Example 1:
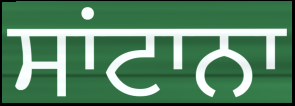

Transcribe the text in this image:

ਸਾਂਟਾਨਾ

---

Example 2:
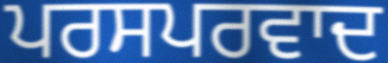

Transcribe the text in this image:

ਪਰਸਪਰਵਾਦ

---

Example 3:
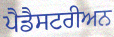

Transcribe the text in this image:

ਪੈਡੈਸਟਰੀਅਨ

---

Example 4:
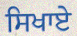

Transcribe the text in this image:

ਸਿਖਾਏ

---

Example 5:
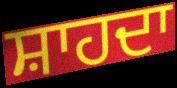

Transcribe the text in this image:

ਸ਼ਾਹਦਾ